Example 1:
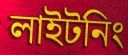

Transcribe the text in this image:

লাইটনিং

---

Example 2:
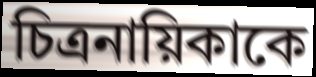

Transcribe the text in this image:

চিত্রনায়িকাকে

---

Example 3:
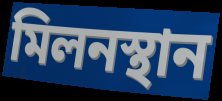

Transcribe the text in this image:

মিলনস্থান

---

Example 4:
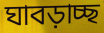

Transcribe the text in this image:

ঘাবড়াচ্ছ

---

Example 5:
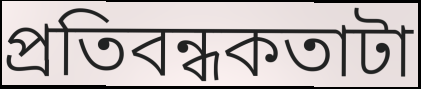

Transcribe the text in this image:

প্রতিবন্ধকতাটা